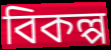
বিকল্প